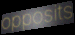
opposits